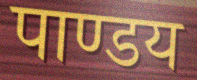
पाण्डय